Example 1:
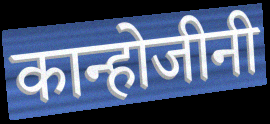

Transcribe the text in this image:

कान्होजीनी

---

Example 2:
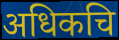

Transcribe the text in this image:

अधिकचि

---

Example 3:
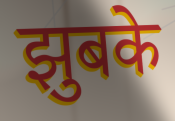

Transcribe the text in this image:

झुबके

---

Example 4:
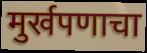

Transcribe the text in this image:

मुर्खपणाचा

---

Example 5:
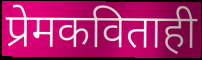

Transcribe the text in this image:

प्रेमकविताही